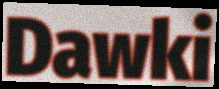
Dawki